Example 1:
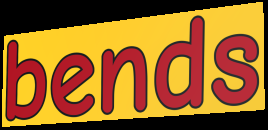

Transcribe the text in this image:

bends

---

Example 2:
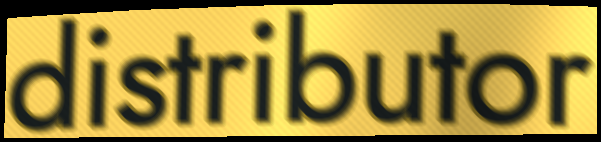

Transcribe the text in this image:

distributor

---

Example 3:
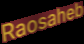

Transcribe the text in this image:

Raosaheb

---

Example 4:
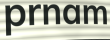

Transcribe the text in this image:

prnam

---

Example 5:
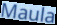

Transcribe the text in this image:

Maula